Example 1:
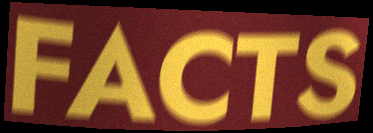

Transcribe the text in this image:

FACTS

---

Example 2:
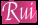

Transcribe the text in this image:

Rui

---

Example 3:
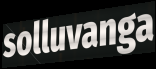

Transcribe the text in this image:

solluvanga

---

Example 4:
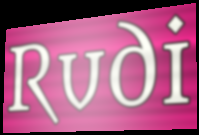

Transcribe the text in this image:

Rudi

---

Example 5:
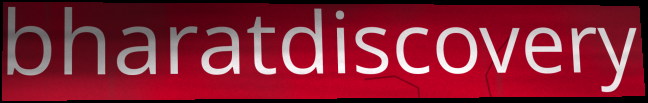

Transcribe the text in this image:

bharatdiscovery